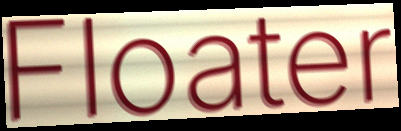
Floater